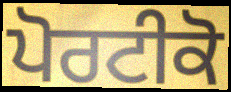
ਪੋਰਟੀਕੋ